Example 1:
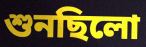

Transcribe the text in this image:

শুনছিলো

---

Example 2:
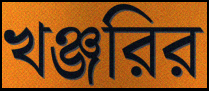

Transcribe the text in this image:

খঞ্জরির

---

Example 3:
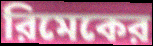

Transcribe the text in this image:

রিমেকের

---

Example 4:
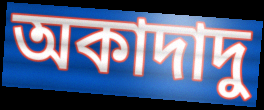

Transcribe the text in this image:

অকাদাদু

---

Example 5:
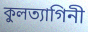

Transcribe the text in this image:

কুলত্যাগিনী